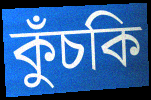
কুঁচকি